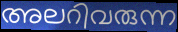
അലറിവരുന്ന